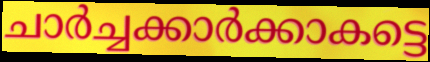
ചാർച്ചക്കാർക്കാകട്ടെ